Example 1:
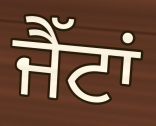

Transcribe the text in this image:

ਜੈੱਟਾਂ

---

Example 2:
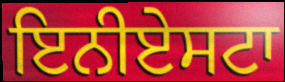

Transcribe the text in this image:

ਇਨੀਏਸਟਾ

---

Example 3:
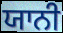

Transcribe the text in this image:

ਯਾਨੀ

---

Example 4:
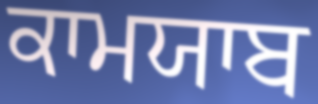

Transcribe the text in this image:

ਕਾਮਯਾਬ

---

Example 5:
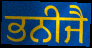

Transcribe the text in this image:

ਭਨੀਜੈ